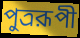
পুত্ররূপী